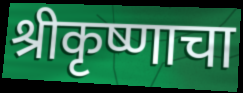
श्रीकृष्णाचा